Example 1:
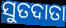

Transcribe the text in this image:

ସୁତଦାତା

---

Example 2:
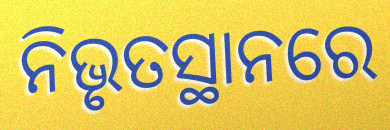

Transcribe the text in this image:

ନିଭୃତସ୍ଥାନରେ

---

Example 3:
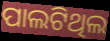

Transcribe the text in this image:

ପାଲଟିଥିଲ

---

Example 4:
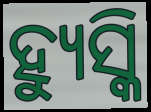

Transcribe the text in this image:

ହ୍ୟୁସ୍କି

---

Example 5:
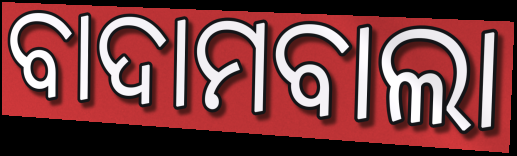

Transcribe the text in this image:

ବାଦାମବାଲା